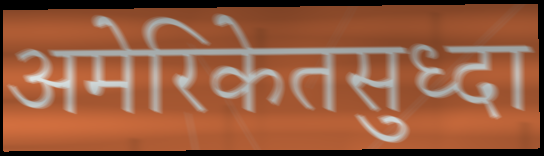
अमेरिकेतसुध्दा